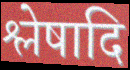
श्लेषादि